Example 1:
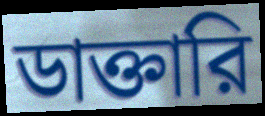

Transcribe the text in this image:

ডাক্তারি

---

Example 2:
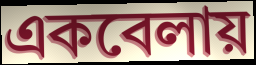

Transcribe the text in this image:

একবেলায়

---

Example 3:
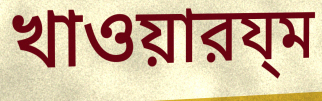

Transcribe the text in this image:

খাওয়ারয্ম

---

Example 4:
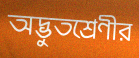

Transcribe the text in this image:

অদ্ভুতশ্রেণীর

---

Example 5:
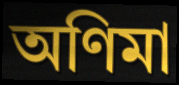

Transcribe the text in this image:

অণিমা